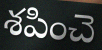
శపించె